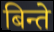
बिन्ते